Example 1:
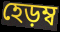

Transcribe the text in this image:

হেড়ম্ব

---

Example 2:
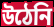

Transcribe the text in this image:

উঠেনি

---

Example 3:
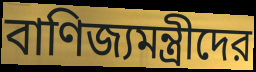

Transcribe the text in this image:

বাণিজ্যমন্ত্রীদের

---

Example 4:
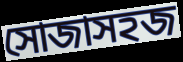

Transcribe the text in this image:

সোজাসহজ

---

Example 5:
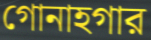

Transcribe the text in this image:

গোনাহগার